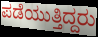
ಪಡೆಯುತ್ತಿದ್ದರು